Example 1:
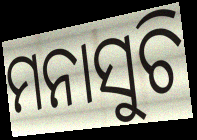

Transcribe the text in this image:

ମନାସୁଚି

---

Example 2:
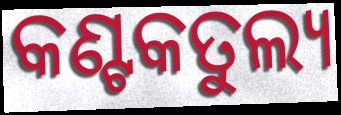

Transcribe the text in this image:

କଣ୍ଟକତୁଲ୍ୟ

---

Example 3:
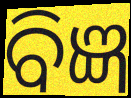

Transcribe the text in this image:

ବିଜ୍ଞ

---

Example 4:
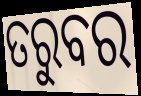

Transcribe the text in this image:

ତରୁବର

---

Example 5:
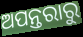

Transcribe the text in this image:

ଅପନ୍ତରାରୁ